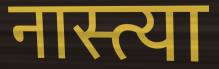
नास्त्या